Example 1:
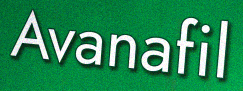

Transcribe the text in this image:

Avanafil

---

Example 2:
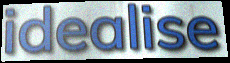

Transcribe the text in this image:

idealise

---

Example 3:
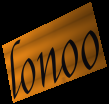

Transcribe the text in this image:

lonoo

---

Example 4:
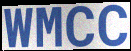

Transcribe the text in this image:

WMCC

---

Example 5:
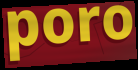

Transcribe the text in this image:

poro